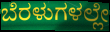
ಬೆರಳುಗಳಲ್ಲೇ